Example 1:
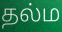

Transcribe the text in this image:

தல்ம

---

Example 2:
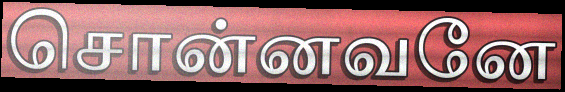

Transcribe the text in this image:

சொன்னவனே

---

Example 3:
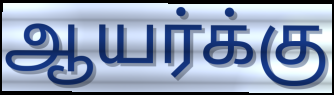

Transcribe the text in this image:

ஆயர்க்கு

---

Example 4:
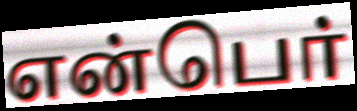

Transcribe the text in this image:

என்பெர்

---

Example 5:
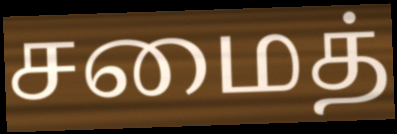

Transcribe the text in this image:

சமைத்